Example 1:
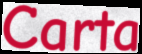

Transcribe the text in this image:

Carta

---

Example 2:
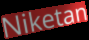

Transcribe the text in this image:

Niketan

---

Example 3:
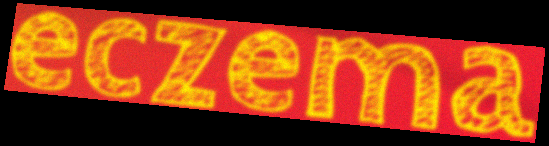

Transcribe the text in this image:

eczema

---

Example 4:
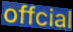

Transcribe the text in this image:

offcial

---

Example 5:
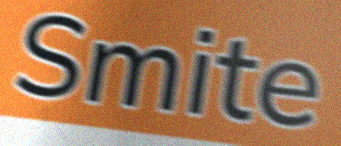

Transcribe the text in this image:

Smite